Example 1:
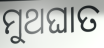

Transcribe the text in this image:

ମୁଥଘାତ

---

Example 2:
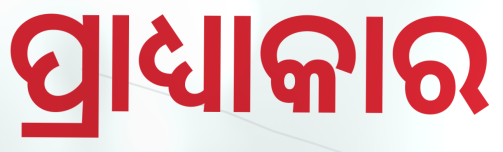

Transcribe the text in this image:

ପ୍ରାଧ୍ୟାକାର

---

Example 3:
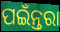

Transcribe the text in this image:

ପଇଁନ୍ତରା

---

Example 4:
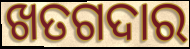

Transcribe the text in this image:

ଖତଗଦାର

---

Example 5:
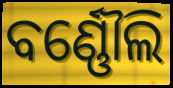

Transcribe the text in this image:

ବର୍ଣ୍ଣୌଲି